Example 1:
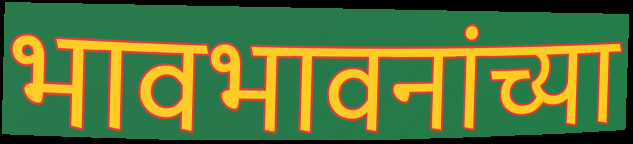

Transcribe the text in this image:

भावभावनांच्या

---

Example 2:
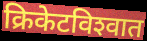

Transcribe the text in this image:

क्रिकेटविश्‍वात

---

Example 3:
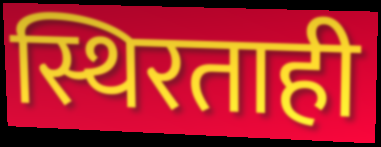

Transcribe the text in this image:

स्थिरताही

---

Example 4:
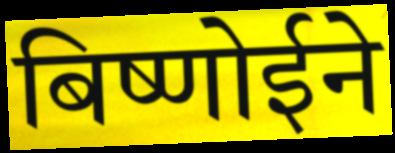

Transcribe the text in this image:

बिष्णोईने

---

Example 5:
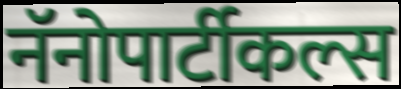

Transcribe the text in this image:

नॅनोपार्टीकल्स